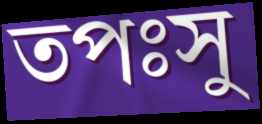
তপঃসু